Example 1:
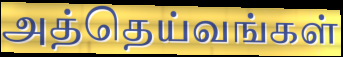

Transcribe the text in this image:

அத்தெய்வங்கள்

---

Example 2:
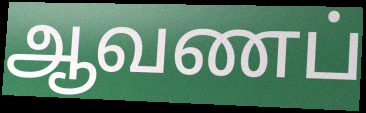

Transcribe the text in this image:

ஆவணப்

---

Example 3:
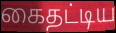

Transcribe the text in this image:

கைதட்டிய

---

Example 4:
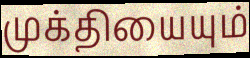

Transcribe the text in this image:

முக்தியையும்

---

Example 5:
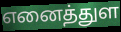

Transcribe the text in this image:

எனைத்துள